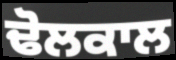
ਢੋਲਕਾਲ